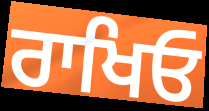
ਰਾਖਿਓ